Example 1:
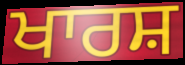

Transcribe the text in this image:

ਖਾਰਸ਼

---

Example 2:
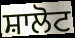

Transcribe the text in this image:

ਸ਼ਾਲੋਟ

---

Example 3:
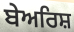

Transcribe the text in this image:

ਬੇਅਰਿਸ਼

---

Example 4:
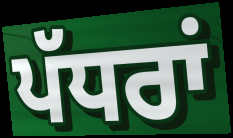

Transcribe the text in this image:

ਪੱਧਰਾਂ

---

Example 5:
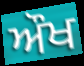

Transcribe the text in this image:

ਔਖ